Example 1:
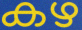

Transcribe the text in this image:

കഴ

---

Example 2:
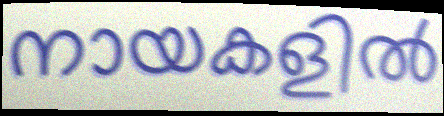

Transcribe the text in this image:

നായകളിൽ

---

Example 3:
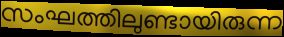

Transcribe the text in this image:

സംഘത്തിലുണ്ടായിരുന്ന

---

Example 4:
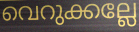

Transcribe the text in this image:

വെറുക്കല്ലേ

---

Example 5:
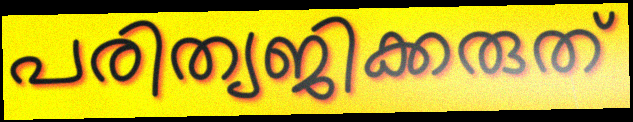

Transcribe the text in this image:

പരിത്യജിക്കരുത്